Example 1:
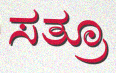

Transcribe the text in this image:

ಸತ್ರೂ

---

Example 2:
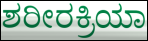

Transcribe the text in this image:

ಶರೀರಕ್ರಿಯಾ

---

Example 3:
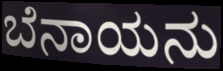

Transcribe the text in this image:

ಬೆನಾಯನು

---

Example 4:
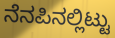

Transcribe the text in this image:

ನೆನಪಿನಲ್ಲಿಟ್ಟು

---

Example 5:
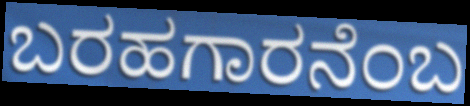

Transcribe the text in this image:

ಬರಹಗಾರನೆಂಬ